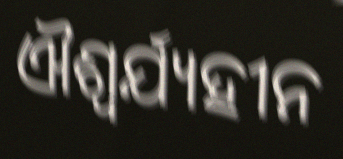
ଐଶ୍ଵର୍ଯ୍ୟହୀନ